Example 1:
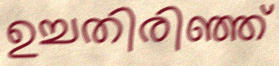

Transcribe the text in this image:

ഉച്ചതിരിഞ്ഞ്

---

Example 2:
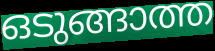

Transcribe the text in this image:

ഒടുങ്ങാത്ത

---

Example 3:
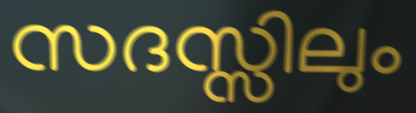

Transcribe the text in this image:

സദസ്സിലും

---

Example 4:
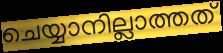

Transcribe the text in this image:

ചെയ്യാനില്ലാത്തത്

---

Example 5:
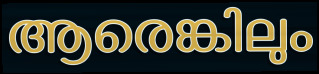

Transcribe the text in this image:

ആരെങ്കിലും